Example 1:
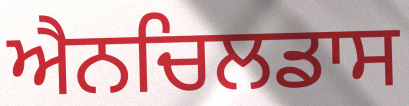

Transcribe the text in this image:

ਐਨਚਿਲਡਾਸ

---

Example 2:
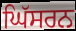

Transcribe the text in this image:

ਘਿੱਸਰਨ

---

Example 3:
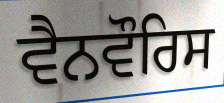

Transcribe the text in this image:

ਵੈਨਵੌਰਿਸ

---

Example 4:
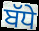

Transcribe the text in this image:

ਬੱਧੇ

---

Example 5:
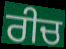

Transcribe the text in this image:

ਰੀਚ